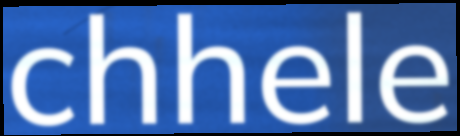
chhele